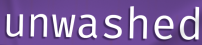
unwashed